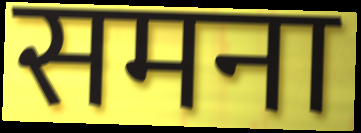
समना